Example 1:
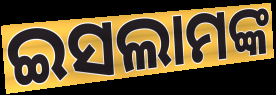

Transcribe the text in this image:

ଇସଲାମଙ୍କ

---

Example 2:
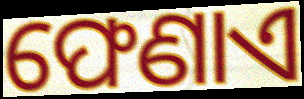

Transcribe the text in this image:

ଫେଣାଏ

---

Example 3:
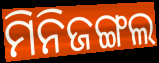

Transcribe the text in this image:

ମିନିଜଙ୍ଗଲ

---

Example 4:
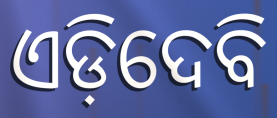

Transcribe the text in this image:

ଏଡ଼ିଦେବି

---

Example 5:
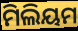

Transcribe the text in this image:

ମିଲିୟମ